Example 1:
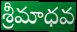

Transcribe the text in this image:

శ్రీమాధవ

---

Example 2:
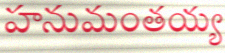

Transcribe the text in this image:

హనుమంతయ్య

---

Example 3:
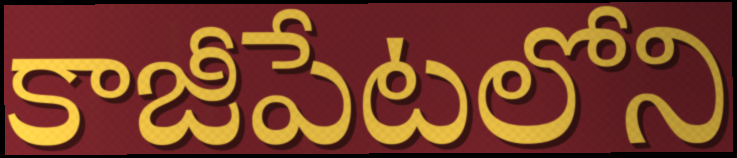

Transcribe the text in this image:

కాజీపేటలోని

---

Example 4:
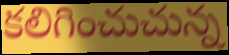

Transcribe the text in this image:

కలిగించుచున్న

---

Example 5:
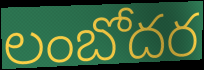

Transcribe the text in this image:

లంబోదర